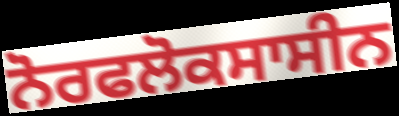
ਨੋਰਫਲੋਕਸਾਸੀਨ